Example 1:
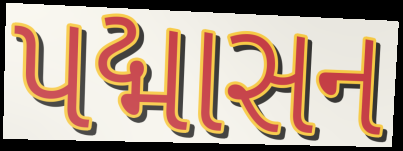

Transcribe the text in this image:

પદ્માસન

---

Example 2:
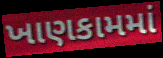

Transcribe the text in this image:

ખાણકામમાં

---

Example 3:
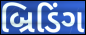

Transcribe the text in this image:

બ્રિડિંગ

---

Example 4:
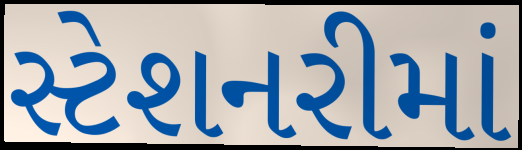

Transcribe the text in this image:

સ્ટેશનરીમાં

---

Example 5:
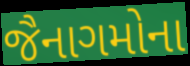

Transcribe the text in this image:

જૈનાગમોના